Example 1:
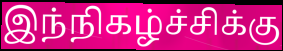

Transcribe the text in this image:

இந்நிகழ்ச்சிக்கு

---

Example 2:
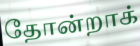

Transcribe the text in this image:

தோன்றாக்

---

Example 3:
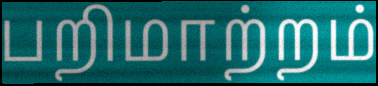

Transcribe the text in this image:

பறிமாற்றம்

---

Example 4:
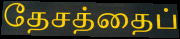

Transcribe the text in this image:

தேசத்தைப்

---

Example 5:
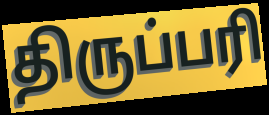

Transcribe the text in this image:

திருப்பரி